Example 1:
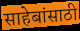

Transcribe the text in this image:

साहेबांसाठी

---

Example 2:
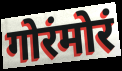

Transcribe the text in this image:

गोरंमोरं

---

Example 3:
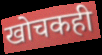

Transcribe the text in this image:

खोचकही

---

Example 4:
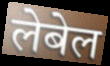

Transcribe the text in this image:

लेबेल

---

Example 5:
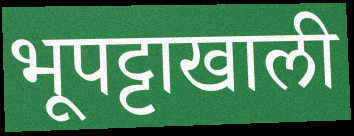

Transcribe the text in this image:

भूपट्टाखाली